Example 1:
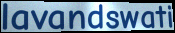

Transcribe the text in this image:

lavandswati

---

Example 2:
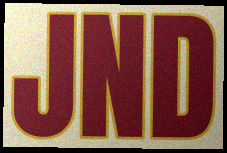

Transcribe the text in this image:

JND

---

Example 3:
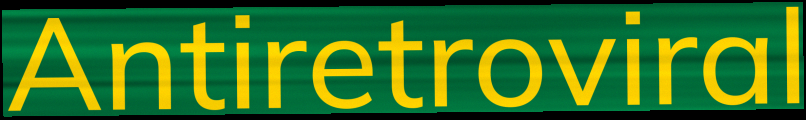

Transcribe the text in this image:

Antiretroviral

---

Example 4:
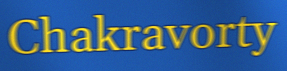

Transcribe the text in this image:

Chakravorty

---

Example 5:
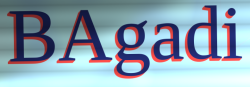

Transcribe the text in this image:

BAgadi